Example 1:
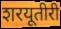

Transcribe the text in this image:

शरयूतीरी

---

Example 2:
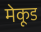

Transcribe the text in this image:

मेकूड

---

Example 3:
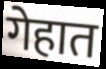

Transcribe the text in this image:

गेहात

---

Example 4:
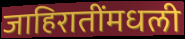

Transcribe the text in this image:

जाहिरातींमधली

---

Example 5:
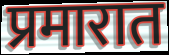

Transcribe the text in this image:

प्रमारात